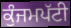
ਕੁੰਜਮਪੱਟੀ